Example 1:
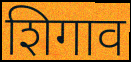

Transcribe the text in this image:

शिगाव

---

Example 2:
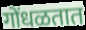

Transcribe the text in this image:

गोंधळतात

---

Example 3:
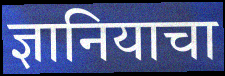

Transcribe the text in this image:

ज्ञानियाचा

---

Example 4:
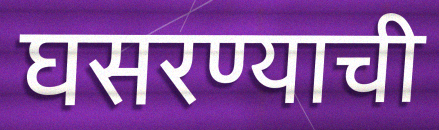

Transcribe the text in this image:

घसरण्याची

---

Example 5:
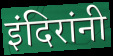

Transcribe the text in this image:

इंदिरांनी